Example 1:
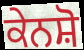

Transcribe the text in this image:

ਕੇਨਸ਼ੋ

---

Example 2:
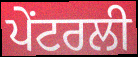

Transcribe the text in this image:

ਪੇਂਟਰਲੀ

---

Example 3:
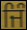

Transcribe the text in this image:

ਜਿੰ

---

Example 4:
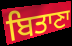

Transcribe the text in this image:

ਬਿਤਾਣਾ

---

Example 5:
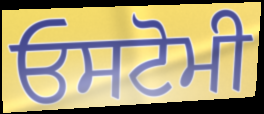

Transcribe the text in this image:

ਓਸਟੋਮੀ